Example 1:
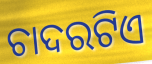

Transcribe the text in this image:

ଚାଦରଟିଏ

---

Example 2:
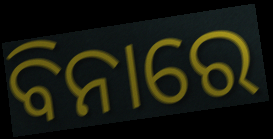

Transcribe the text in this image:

ବିନାରେ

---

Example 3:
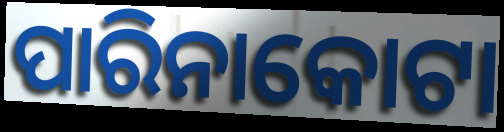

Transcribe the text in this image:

ପାରିନାକୋଟା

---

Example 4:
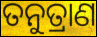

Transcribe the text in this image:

ତନୁତ୍ରାଣ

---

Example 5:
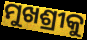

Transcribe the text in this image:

ମୁଖଶ୍ରୀକୁ